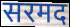
सरमद